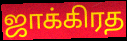
ஜாக்கிரத